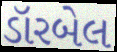
ડૉરબેલ